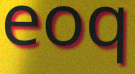
eoq